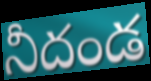
నీదండ